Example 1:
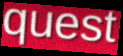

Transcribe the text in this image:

quest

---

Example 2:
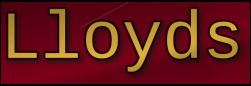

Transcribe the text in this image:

Lloyds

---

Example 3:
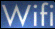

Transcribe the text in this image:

Wifi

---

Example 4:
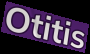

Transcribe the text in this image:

Otitis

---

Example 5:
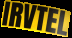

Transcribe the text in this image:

IRVTEL